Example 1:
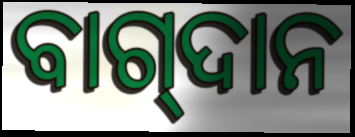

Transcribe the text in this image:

ବାଗ୍‍ଦାନ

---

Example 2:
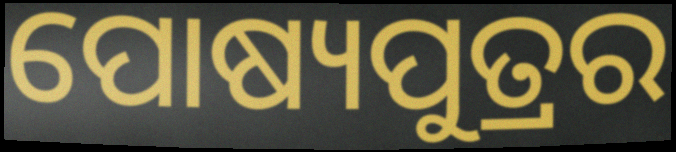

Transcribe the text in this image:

ପୋଷ୍ୟପୁତ୍ରର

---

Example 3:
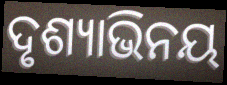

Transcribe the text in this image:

ଦୃଶ୍ୟାଭିନୟ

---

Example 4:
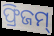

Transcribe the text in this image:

ଫ୍ରିଜମ୍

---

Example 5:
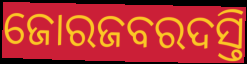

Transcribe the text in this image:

ଜୋରଜବରଦସ୍ତି